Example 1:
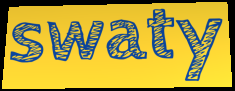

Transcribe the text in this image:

swaty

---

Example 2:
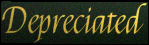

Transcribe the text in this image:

Depreciated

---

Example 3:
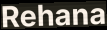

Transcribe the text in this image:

Rehana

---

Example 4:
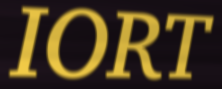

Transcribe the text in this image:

IORT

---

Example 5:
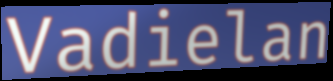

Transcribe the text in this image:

Vadielan